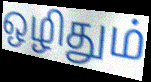
ஒழிதும்